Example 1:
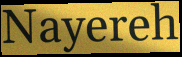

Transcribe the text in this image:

Nayereh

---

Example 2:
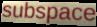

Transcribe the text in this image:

subspace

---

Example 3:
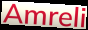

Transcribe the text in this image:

Amreli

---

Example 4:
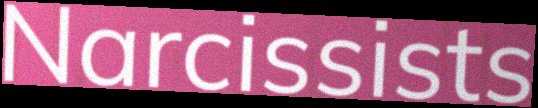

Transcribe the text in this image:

Narcissists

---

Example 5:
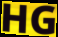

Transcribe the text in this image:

HG